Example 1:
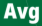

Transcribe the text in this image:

Avg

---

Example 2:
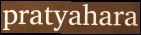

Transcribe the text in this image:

pratyahara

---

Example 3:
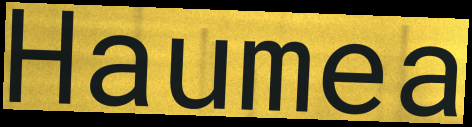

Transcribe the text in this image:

Haumea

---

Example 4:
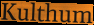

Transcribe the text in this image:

Kulthum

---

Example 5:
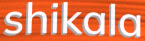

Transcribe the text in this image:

shikala